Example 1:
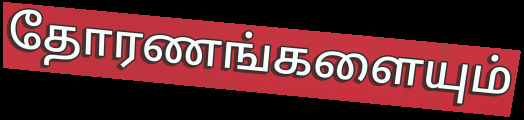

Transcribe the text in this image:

தோரணங்களையும்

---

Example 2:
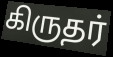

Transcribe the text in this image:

கிருதர்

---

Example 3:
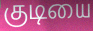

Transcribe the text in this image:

குடியை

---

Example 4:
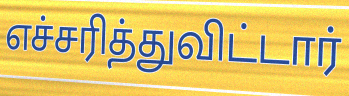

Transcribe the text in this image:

எச்சரித்துவிட்டார்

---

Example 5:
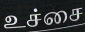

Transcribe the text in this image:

உச்சை